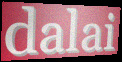
dalai